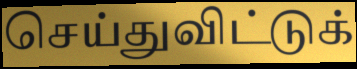
செய்துவிட்டுக்